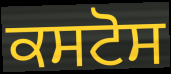
ਕਸਟੋਸ